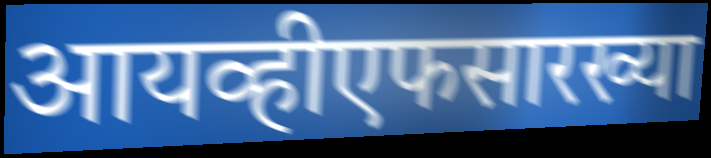
आयव्हीएफसारख्या